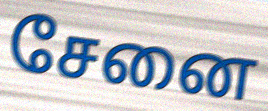
சேனை